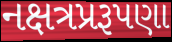
નક્ષત્રપ્રરૂપણા